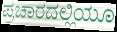
ಪ್ರಚಾರದಲ್ಲಿಯೂ